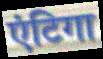
एंटिगा